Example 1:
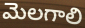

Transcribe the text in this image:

మెలగాలి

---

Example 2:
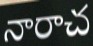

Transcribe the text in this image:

నారాచ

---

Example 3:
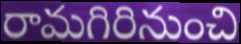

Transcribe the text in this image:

రామగిరినుంచి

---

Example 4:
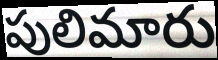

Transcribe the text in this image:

పులిమారు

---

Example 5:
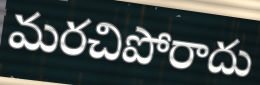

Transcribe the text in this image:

మరచిపోరాదు